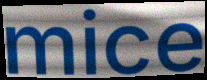
mice